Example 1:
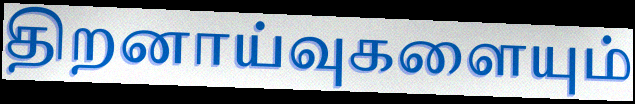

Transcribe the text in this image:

திறனாய்வுகளையும்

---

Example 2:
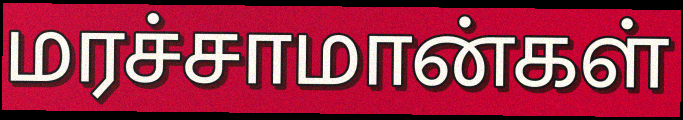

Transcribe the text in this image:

மரச்சாமான்கள்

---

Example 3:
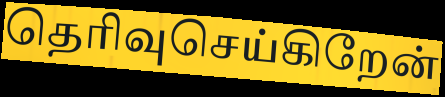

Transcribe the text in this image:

தெரிவுசெய்கிறேன்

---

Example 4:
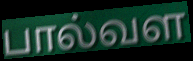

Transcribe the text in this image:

பால்வள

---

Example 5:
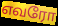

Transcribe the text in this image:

எவரோ